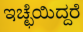
ಇಚ್ಛೆಯಿದ್ದರೆ